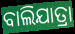
ବାଲିଯାତ୍ରା